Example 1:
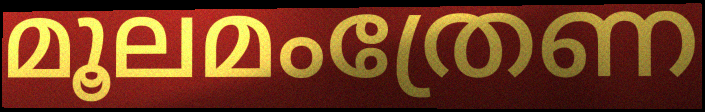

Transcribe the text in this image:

മൂലമംത്രേണ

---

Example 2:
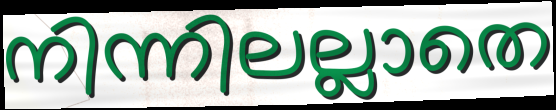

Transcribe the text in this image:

നിന്നിലല്ലാതെ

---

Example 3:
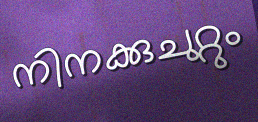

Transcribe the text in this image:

നിനക്കുചുറ്റും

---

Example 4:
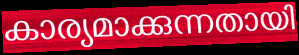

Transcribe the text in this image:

കാര്യമാക്കുന്നതായി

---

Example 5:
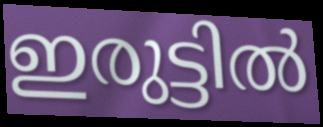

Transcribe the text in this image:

ഇരുട്ടിൽ